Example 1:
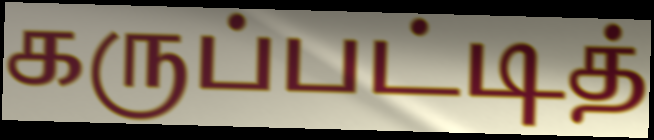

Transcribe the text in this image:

கருப்பட்டித்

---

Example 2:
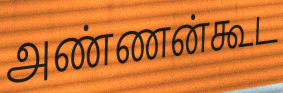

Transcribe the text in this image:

அண்ணன்கூட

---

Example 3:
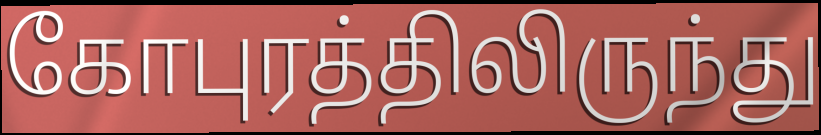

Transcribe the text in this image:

கோபுரத்திலிருந்து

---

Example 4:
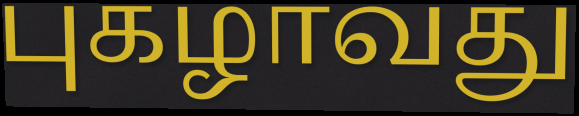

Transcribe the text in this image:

புகழாவது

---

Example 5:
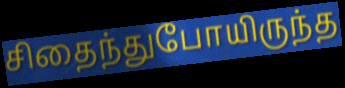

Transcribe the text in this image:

சிதைந்துபோயிருந்த